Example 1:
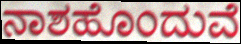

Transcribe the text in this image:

ನಾಶಹೊಂದುವೆ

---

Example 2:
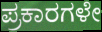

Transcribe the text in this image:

ಪ್ರಕಾರಗಳೇ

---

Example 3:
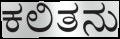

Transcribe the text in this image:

ಕಲಿತನು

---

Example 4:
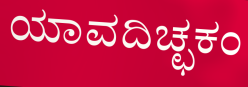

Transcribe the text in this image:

ಯಾವದಿಚ್ಛಕಂ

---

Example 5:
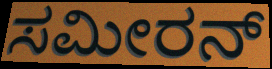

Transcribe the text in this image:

ಸಮೀರನ್